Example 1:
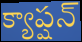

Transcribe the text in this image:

క్యాప్షన్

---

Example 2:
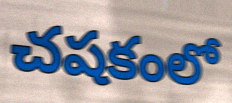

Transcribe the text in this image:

చషకంలో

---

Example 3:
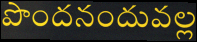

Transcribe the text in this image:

పొందనందువల్ల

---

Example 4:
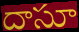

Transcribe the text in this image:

దాసూ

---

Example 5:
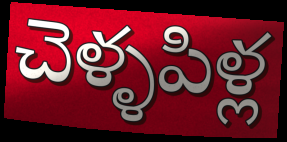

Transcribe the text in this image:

చెళ్ళపిళ్ల